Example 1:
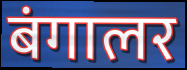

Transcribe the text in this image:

बंगालर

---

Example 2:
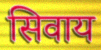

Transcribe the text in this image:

सिवाय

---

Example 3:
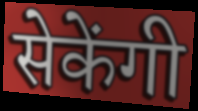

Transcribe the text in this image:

सेकेंगी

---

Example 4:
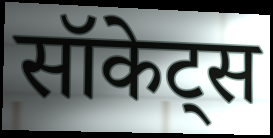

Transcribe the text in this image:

सॉकेट्स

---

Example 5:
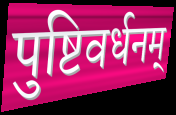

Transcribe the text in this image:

पुष्टिवर्धनम्